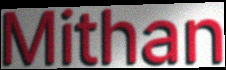
Mithan